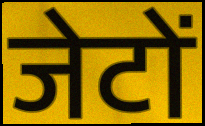
जेटों